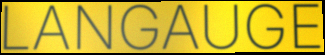
LANGAUGE